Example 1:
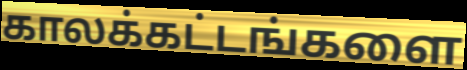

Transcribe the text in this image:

காலக்கட்டங்களை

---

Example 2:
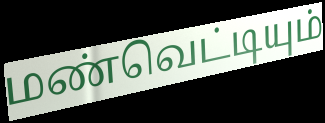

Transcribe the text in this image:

மண்வெட்டியும்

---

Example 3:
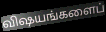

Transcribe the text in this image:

விஷயங்களைப்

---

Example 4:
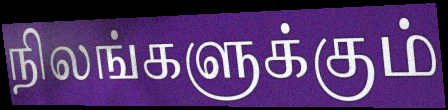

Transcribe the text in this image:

நிலங்களுக்கும்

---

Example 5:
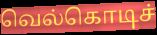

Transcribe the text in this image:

வெல்கொடிச்